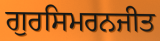
ਗੁਰਸਿਮਰਨਜੀਤ